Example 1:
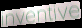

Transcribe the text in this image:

inventive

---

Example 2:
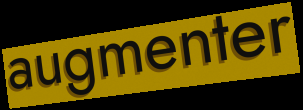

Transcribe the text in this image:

augmenter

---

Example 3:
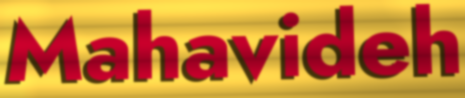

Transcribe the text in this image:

Mahavideh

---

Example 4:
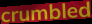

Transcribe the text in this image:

crumbled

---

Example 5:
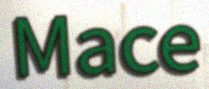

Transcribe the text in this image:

Mace